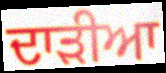
ਦਾੜੀਆ